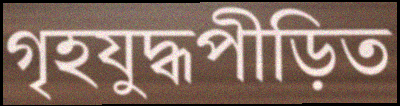
গৃহযুদ্ধপীড়িত